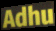
Adhu